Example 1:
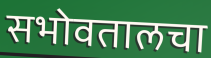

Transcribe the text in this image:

सभोवतालचा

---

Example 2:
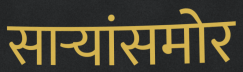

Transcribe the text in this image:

साऱ्यांसमोर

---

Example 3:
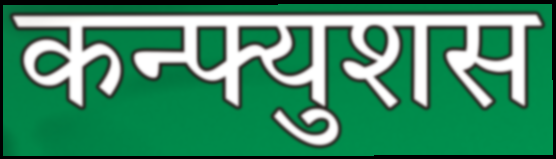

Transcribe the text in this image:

कन्फ्युशस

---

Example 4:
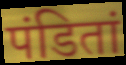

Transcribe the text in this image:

पंडितां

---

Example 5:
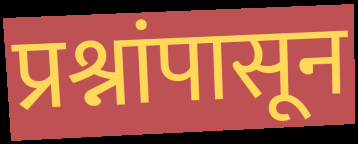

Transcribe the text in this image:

प्रश्नांपासून